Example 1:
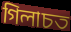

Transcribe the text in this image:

গিলাচত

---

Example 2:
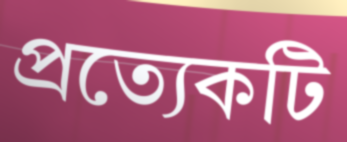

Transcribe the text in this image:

প্ৰত্যেকটি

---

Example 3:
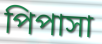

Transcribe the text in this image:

পিপাসা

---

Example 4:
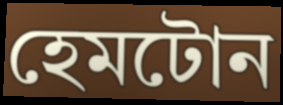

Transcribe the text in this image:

হেমটোন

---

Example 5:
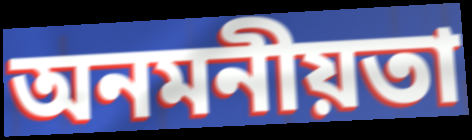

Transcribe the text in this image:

অনমনীয়তা